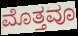
ಮೊತ್ತವೂ